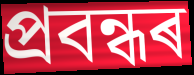
প্ৰবন্ধৰ